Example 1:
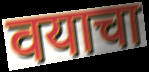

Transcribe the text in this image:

वयाचा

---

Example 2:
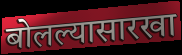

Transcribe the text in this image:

बोलल्यासारखा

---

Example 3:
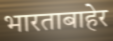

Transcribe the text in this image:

भारताबाहेर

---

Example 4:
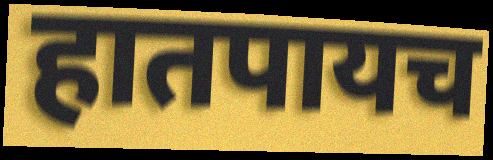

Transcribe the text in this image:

हातपायच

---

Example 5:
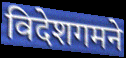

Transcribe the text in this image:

विदेशगमने